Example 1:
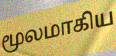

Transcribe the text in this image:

மூலமாகிய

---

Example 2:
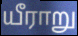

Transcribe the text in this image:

யீராறு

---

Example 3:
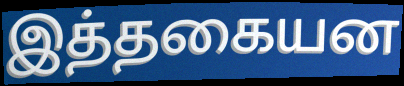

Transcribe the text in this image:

இத்தகையன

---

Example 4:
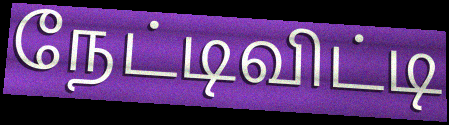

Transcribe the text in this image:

நேட்டிவிட்டி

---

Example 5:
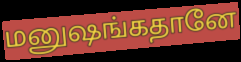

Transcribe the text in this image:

மனுஷங்கதானே